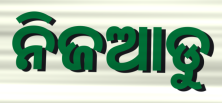
ନିଜଆଡୁ